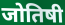
जोतिषी